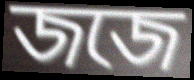
জজে